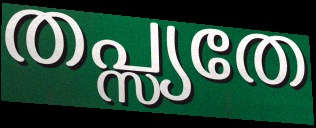
തപ്സ്യതേ